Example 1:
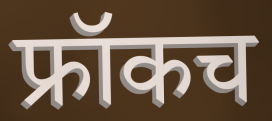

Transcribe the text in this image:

फ्रॉकच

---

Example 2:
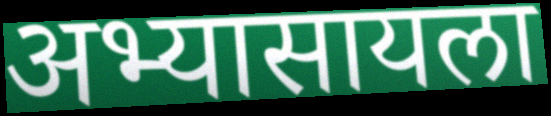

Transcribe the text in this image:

अभ्यासायला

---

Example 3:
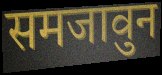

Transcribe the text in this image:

समजावुन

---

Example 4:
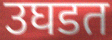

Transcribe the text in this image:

उघडत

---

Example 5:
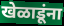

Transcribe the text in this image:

खेळाडूंना